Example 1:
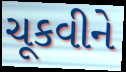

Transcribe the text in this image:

ચૂકવીને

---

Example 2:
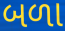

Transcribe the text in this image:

બળા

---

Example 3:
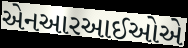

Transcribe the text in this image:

એનઆરઆઈઓએ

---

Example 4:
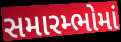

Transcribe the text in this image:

સમારમ્ભોમાં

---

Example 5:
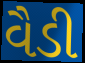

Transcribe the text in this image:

વૈડી